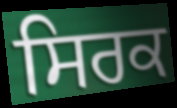
ਸਿਰਕ